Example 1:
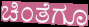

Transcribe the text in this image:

ಚಿಂತೆಗೂ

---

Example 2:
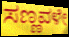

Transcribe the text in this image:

ಸಣ್ಣವಳೇ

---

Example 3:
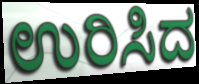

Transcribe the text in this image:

ಉರಿಸಿದ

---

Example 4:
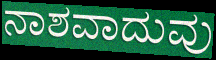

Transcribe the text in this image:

ನಾಶವಾದುವು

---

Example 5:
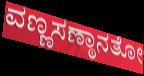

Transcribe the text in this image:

ವಣ್ಣಸಣ್ಠಾನತೋ